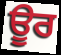
ਊਰ